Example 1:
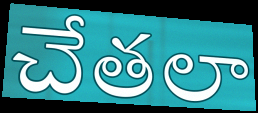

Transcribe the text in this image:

చేతలా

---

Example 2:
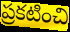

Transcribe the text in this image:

ప్రకటించి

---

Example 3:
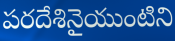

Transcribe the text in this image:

పరదేశినైయుంటిని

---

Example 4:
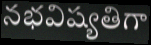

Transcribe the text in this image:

నభవిష్యతిగా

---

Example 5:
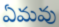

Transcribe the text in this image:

ఏమవు